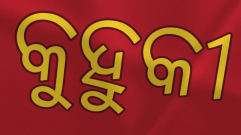
କୁହୁକୀ